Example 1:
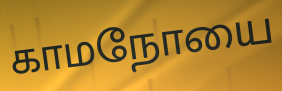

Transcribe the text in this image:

காமநோயை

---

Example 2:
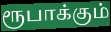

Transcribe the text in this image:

ரூபாக்கும்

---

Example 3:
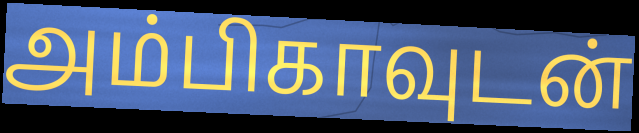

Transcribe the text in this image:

அம்பிகாவுடன்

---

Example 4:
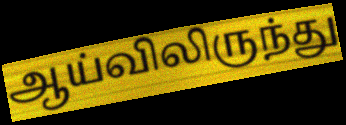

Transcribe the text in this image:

ஆய்விலிருந்து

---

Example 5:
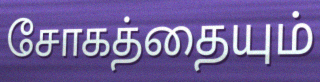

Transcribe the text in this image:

சோகத்தையும்